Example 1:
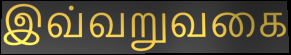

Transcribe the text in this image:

இவ்வறுவகை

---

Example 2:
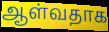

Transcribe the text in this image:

ஆள்வதாக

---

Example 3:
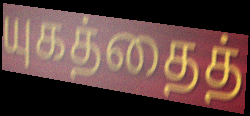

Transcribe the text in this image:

யுகத்தைத்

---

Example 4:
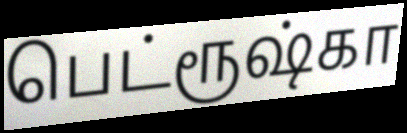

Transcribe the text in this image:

பெட்ரூஷ்கா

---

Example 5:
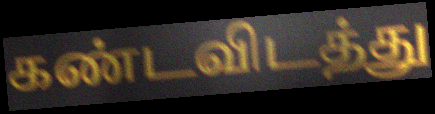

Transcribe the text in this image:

கண்டவிடத்து